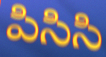
పిసిసి